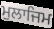
ਮੁਲਾਜਿਮ